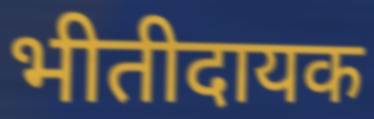
भीतीदायक